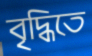
বৃদ্ধিতে